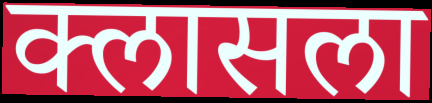
क्लासला